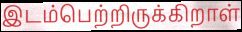
இடம்பெற்றிருக்கிறாள்